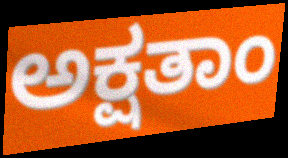
ಅಕ್ಷತಾಂ